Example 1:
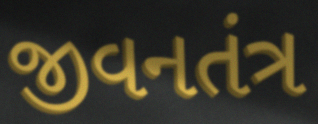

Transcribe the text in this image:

જીવનતંત્ર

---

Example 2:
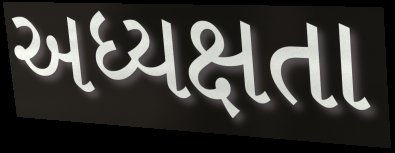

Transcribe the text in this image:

અધ્યક્ષતા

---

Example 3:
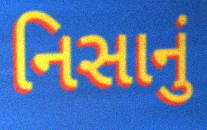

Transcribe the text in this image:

નિસાનું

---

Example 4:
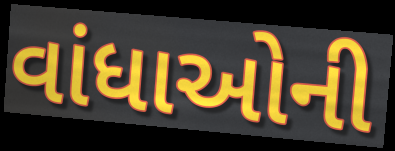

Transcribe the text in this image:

વાંધાઓની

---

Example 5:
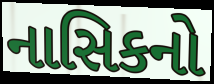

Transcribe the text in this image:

નાસિકનો